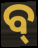
ବ୍